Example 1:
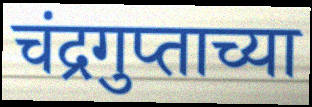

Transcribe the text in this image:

चंद्रगुप्ताच्या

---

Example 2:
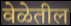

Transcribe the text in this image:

वेळेतील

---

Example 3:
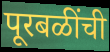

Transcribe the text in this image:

पूरबळींची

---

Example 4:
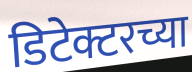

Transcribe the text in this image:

डिटेक्टरच्या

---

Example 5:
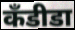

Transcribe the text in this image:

कॅंडीडा